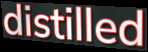
distilled